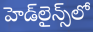
హెడ్‌లైన్స్‌లో